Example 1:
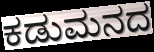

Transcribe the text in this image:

ಕಡುಮನದ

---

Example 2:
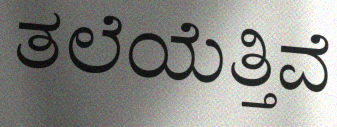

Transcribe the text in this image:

ತಲೆಯೆತ್ತಿವೆ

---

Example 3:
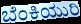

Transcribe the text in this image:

ಬೆಂಕಿಯುರಿ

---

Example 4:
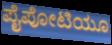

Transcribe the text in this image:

ಪೈಪೋಟಿಯೂ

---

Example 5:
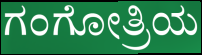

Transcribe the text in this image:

ಗಂಗೋತ್ರಿಯ